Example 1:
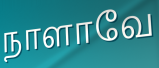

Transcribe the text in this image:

நாளாவே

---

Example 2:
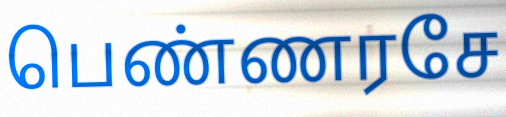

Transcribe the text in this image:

பெண்ணரசே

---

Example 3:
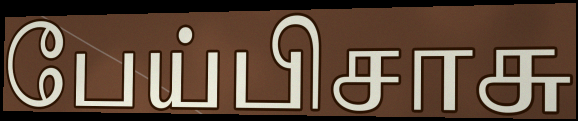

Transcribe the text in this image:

பேய்பிசாசு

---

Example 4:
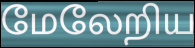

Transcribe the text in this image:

மேலேறிய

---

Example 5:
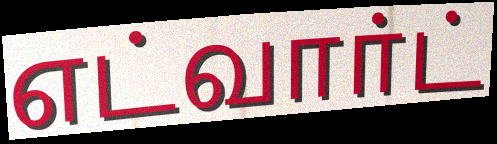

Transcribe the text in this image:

எட்வார்ட்